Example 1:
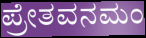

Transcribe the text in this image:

ಪ್ರೇತವನಮಂ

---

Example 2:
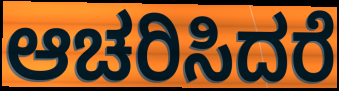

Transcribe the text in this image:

ಆಚರಿಸಿದರೆ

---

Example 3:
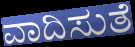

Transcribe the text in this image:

ವಾದಿಸುತೆ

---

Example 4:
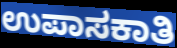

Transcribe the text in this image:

ಉಪಾಸಕಾತಿ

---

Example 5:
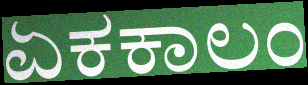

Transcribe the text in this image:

ಏಕಕಾಲಂ